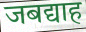
जबद्याह